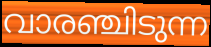
വാരഞ്ചിടുന്ന